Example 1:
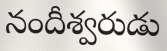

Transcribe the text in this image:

నందీశ్వరుడు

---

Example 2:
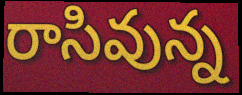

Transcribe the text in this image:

రాసివున్న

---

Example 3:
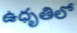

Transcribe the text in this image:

ఉధృతిలో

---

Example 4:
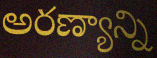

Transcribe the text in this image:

అరణ్యాన్ని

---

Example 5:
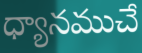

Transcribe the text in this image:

ధ్యానముచే